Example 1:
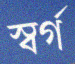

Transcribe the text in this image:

স্বর্গ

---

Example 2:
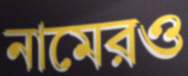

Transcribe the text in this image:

নামেরও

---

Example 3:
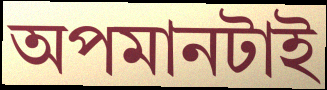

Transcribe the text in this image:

অপমানটাই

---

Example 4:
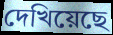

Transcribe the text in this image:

দেখিয়েছে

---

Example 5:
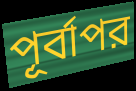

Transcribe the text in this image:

পূর্বাপর